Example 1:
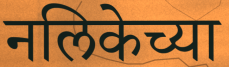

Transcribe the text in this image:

नलिकेच्या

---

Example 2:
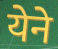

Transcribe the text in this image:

येने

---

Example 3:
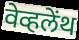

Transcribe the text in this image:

वेव्हलेंथ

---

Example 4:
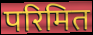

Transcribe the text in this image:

परिमित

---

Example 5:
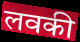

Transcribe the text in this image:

लवकी